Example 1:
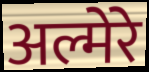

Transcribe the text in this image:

अल्मेरे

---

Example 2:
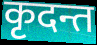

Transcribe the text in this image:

कृदन्त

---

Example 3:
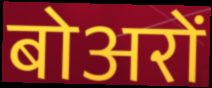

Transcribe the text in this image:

बोअरों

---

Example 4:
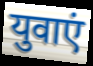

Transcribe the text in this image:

युवाएं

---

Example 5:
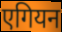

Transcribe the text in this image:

एगियन